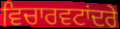
ਵਿਚਾਰਵਟਾਂਦਰੇ